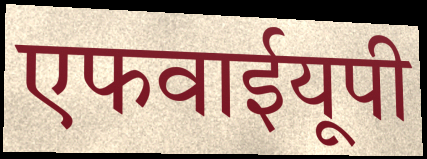
एफवाईयूपी